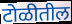
टोळीतील